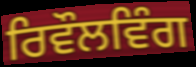
ਰਿਵੌਲਵਿੰਗ